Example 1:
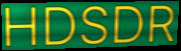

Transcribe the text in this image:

HDSDR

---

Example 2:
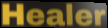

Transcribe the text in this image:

Healer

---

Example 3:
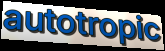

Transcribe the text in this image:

autotropic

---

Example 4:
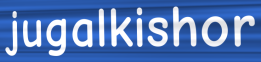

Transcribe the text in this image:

jugalkishor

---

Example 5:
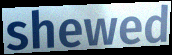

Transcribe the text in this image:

shewed